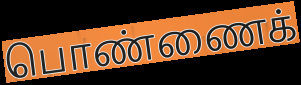
பொண்ணைக்